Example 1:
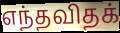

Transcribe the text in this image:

எந்தவிதக்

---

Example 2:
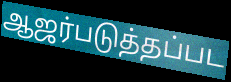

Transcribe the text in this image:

ஆஜர்படுத்தப்பட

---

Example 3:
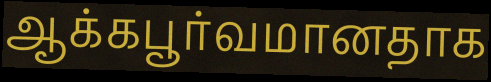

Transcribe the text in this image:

ஆக்கபூர்வமானதாக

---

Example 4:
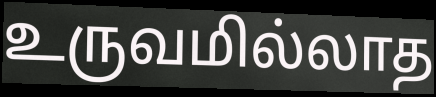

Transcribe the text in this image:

உருவமில்லாத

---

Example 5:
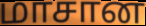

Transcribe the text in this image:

மாசான